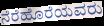
ನೆರೆಹೊರೆಯವರು